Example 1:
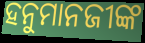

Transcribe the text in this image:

ହନୁମାନଜୀଙ୍କ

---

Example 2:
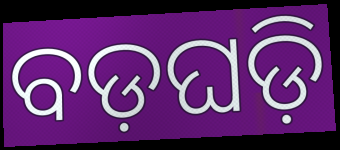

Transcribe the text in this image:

ବଡ଼ଘଡ଼ି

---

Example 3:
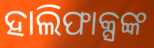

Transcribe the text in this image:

ହାଲିଫାକ୍ସଙ୍କ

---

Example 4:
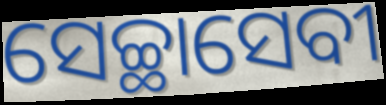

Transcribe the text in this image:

ସେଚ୍ଛାସେବୀ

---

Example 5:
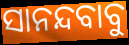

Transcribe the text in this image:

ସାନନ୍ଦବାବୁ